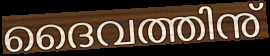
ദൈവത്തിനു്